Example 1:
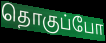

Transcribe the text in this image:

தொகுப்போ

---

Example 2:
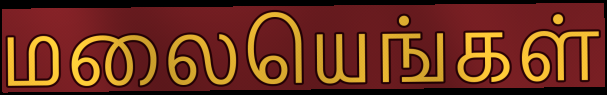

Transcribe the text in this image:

மலையெங்கள்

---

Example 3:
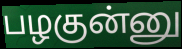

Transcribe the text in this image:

பழகுன்னு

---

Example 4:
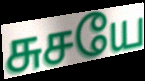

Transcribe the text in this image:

சுசயே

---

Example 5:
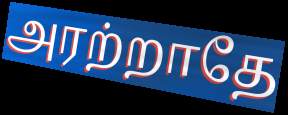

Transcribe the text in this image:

அரற்றாதே